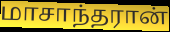
மாசாந்தரான்